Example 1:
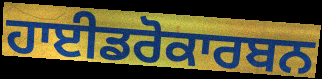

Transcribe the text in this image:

ਹਾਈਡਰੋਕਾਰਬਨ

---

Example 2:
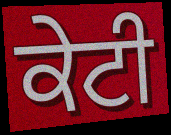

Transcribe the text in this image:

ਕੇਟੀ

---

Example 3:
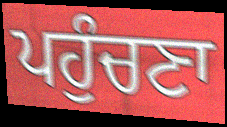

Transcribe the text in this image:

ਪਹੁੰਚਣਾ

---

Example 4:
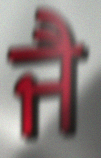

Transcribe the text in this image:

ਜੈ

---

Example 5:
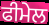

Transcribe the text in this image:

ਫੀਮੇਲ